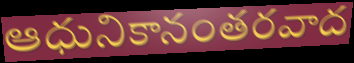
ఆధునికానంతరవాద